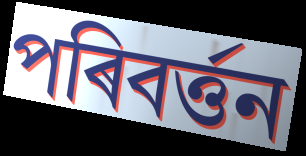
পৰিবৰ্ত্তন